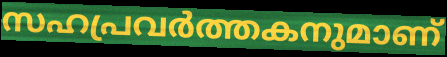
സഹപ്രവർത്തകനുമാണ്